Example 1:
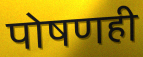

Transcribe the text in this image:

पोषणही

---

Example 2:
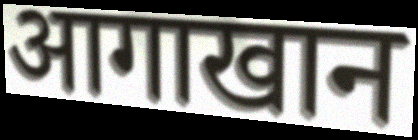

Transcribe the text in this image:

आगाखान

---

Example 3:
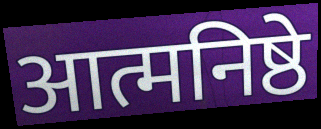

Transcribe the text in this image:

आत्मनिष्ठे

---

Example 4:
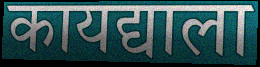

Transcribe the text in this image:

कायद्याला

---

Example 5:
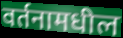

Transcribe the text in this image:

वर्तनामधील